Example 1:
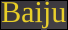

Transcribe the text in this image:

Baiju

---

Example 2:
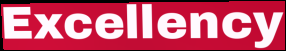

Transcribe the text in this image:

Excellency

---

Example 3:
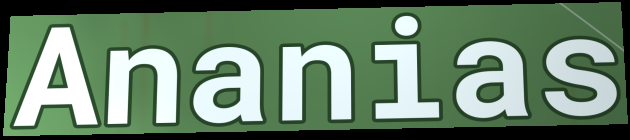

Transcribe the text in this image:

Ananias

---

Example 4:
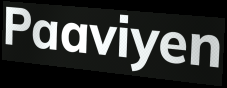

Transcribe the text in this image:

Paaviyen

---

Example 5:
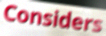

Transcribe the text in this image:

Considers